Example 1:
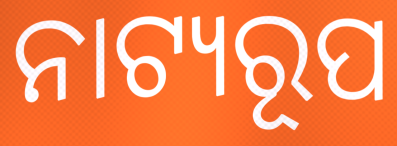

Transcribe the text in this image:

ନାଟ୍ୟରୂପ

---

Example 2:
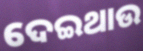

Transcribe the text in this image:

ଦେଇଥାଉ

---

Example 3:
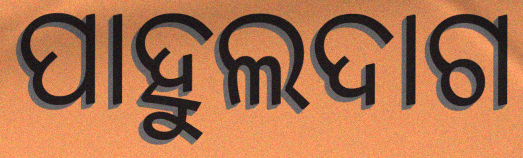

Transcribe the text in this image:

ପାହୁଲଦାଗ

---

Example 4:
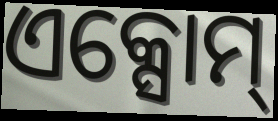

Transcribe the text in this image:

ଏକ୍ସୋମ୍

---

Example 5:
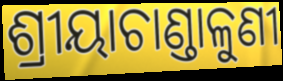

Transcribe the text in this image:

ଶ୍ରୀୟାଚାଣ୍ଡାଳୁଣୀ